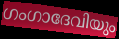
ഗംഗാദേവിയും